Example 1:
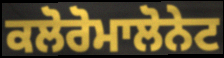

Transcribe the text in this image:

ਕਲੋਰੋਮਾਲੋਨੇਟ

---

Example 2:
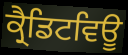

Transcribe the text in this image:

ਕ੍ਰੈਡਿਟਵਿਊ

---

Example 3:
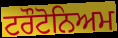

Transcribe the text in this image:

ਟਰੌਟੋਨਿਅਮ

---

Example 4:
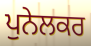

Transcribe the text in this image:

ਪੁਨੇਲਕਰ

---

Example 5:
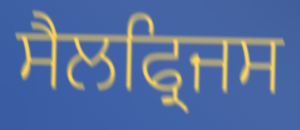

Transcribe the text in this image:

ਸੈਲਫ੍ਰਿਜਸ